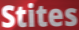
Stites